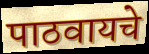
पाठवायचे